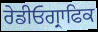
ਰੇਡੀਓਗ੍ਰਾਫਿਕ